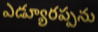
ఎడ్యూరప్పను